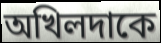
অখিলদাকে